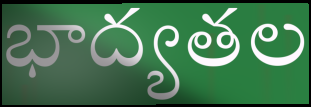
భాద్యతల